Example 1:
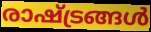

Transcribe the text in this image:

രാഷ്ട്രങ്ങൾ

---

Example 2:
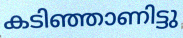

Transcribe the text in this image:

കടിഞ്ഞാണിട്ടു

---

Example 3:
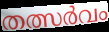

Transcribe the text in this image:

തത്സർവം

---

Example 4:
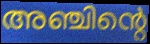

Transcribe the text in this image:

അഞ്ചിന്റെ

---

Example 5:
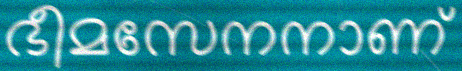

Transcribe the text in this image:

ഭീമസേനനാണ്